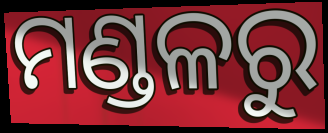
ମଣ୍ଡଳରୁ